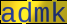
admk